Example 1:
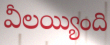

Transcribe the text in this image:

వీలయ్యింది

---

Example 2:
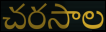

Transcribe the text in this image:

చరసాల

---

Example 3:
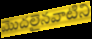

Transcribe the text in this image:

మొదలైనవాటిని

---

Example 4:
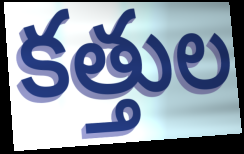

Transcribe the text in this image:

కత్తుల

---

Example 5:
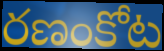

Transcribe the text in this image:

రణంకోట